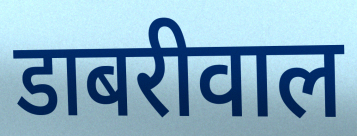
डाबरीवाल